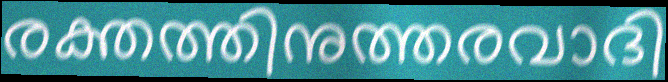
രക്തത്തിനുത്തരവാദി